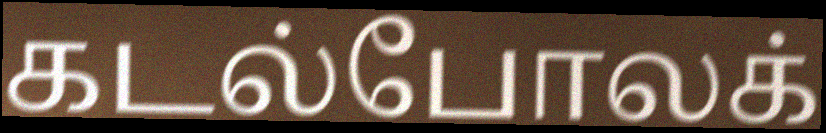
கடல்போலக்